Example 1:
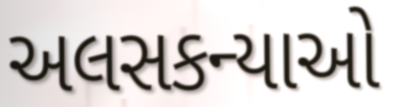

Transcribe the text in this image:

અલસકન્યાઓ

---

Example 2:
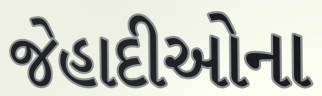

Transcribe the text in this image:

જેહાદીઓના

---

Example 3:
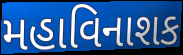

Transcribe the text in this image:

મહાવિનાશક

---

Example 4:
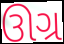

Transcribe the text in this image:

ઊગ્ર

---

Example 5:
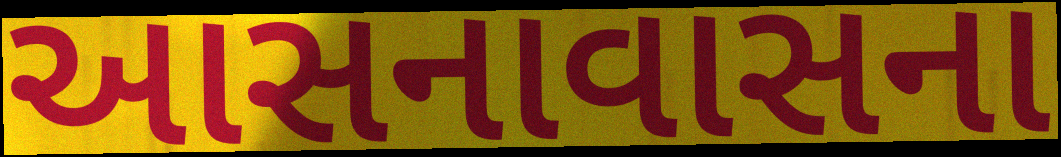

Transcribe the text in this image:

આસનાવાસના